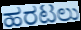
ಹರಟಲು